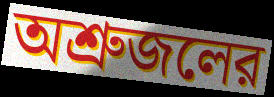
অশ্রুজলের